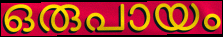
ഒരുപായം